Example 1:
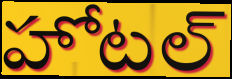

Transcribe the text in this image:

హోటల్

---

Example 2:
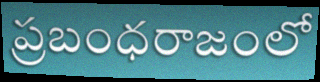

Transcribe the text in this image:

ప్రబంధరాజంలో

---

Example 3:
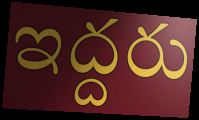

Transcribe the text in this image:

ఇద్దరు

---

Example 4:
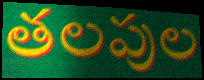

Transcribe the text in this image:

తలపుల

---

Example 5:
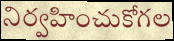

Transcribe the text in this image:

నిర్వహించుకోగల